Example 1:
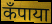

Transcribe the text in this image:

कँपाया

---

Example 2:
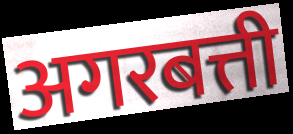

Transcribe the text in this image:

अगरबत्ती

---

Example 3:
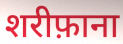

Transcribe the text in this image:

शरीफ़ाना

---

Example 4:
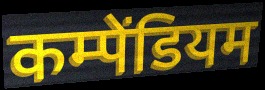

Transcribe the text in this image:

कम्पेंडियम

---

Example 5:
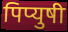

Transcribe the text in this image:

पिप्युषी